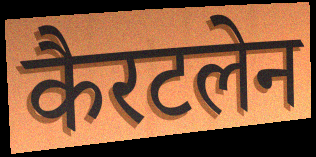
कैरटलेन